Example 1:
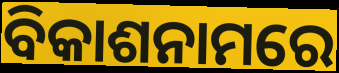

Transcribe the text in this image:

ବିକାଶନାମରେ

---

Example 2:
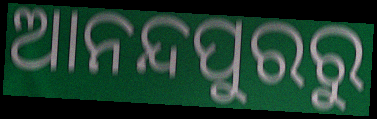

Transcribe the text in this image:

ଆନନ୍ଦପୁରରୁ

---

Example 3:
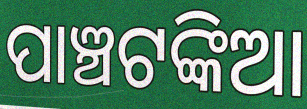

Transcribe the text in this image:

ପାଞ୍ଚଟଙ୍କିଆ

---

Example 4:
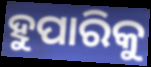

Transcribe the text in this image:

ହୁପାରିକୁ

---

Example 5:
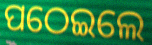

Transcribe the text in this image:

ପଠେଇଲେ